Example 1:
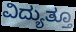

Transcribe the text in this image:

ವಿದ್ಯುತ್ತೂ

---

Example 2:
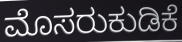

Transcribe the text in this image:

ಮೊಸರುಕುಡಿಕೆ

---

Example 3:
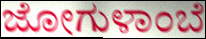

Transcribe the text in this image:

ಜೋಗುಳಾಂಬೆ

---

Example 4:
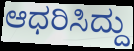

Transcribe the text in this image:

ಆಧರಿಸಿದ್ದು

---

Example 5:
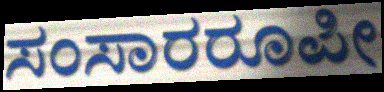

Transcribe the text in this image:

ಸಂಸಾರರೂಪೀ